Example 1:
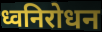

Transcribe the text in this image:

ध्वनिरोधन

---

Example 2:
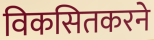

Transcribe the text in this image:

विकसितकरने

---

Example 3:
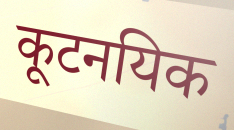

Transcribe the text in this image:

कूटनयिक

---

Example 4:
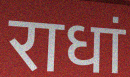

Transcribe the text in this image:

राधां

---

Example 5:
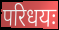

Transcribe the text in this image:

परिधयः